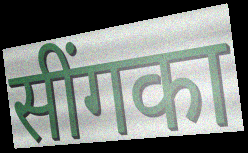
सींगका